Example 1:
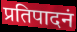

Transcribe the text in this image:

प्रतिपादनं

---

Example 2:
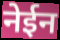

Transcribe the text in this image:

नेईन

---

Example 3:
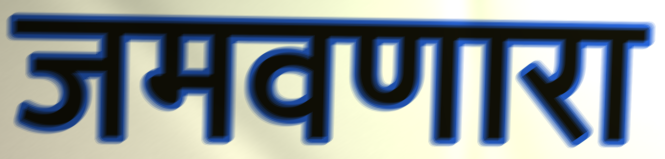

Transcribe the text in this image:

जमवणारा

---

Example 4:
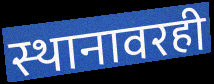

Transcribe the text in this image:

स्थानावरही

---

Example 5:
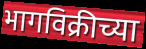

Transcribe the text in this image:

भागविक्रीच्या